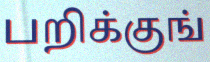
பறிக்குங்